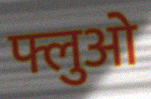
फ्लुओ